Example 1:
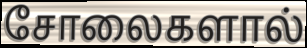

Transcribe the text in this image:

சோலைகளால்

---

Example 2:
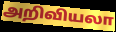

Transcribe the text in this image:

அறிவியலா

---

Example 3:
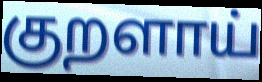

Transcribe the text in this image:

குறளாய்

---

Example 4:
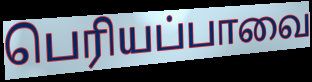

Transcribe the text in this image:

பெரியப்பாவை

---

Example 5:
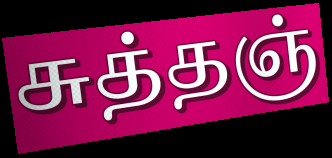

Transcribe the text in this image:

சுத்தஞ்